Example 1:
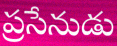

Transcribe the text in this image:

ప్రసేనుడు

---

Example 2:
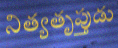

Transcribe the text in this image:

నిత్యతృప్తుడు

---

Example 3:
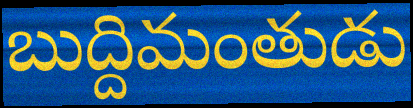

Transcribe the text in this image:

బుద్దిమంతుడు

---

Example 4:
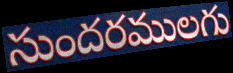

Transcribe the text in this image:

సుందరములగు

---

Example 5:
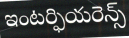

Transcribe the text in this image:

ఇంటర్ఫియరెన్స్